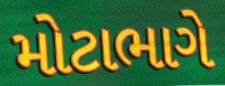
મોટાભાગે